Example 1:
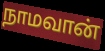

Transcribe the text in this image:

நாமவான்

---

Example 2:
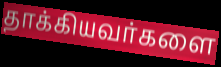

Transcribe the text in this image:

தாக்கியவர்களை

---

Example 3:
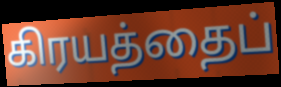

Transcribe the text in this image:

கிரயத்தைப்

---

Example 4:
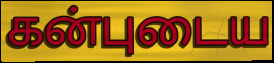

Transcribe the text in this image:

கன்புடைய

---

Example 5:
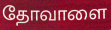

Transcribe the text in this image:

தோவாளை